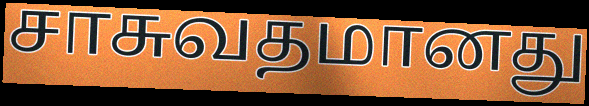
சாசுவதமானது